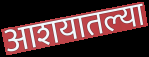
आशयातल्या